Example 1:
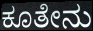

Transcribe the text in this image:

ಕೂತೇನು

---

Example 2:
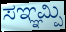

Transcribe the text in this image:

ಸಞ್ಞಮ್ಪಿ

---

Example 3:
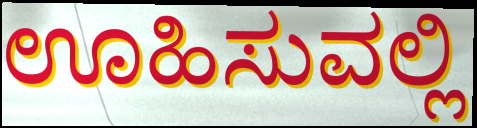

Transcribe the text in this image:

ಊಹಿಸುವಲ್ಲಿ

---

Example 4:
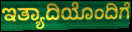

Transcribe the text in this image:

ಇತ್ಯಾದಿಯೊಂದಿಗೆ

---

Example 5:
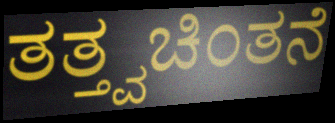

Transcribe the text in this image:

ತತ್ತ್ವಚಿಂತನೆ